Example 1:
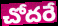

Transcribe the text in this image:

చోదరే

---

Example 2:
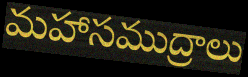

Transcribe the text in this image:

మహాసముద్రాలు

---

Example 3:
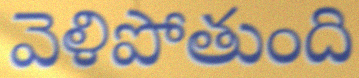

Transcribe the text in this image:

వెళిపోతుంది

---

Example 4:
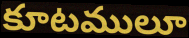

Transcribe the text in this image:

కూటములూ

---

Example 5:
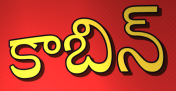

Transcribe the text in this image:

కాబిన్